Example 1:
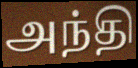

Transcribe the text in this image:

அந்தி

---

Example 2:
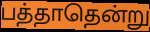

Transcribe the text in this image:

பத்தாதென்று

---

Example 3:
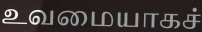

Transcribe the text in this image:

உவமையாகச்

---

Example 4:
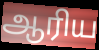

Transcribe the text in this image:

ஆரிய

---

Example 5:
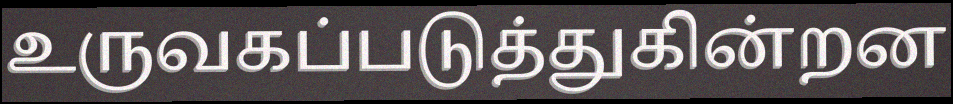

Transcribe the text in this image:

உருவகப்படுத்துகின்றன